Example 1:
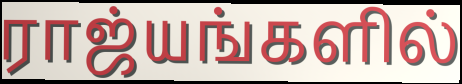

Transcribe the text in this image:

ராஜ்யங்களில்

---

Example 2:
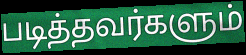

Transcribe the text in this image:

படித்தவர்களும்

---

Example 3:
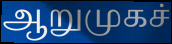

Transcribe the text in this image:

ஆறுமுகச்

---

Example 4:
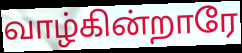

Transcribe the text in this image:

வாழ்கின்றாரே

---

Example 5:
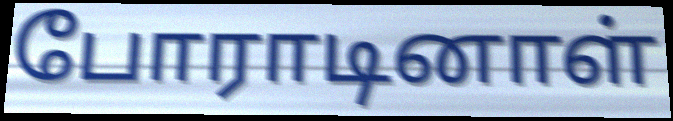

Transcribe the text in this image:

போராடினாள்